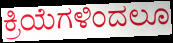
ಕ್ರಿಯೆಗಳಿಂದಲೂ